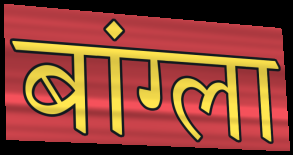
बांग्ला